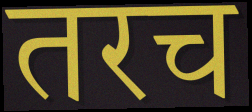
तरच